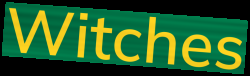
Witches